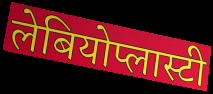
लेबियोप्लास्टी